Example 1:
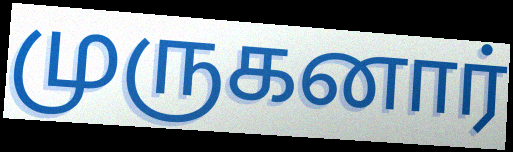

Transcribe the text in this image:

முருகனார்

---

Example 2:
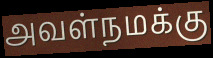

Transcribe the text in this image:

அவள்நமக்கு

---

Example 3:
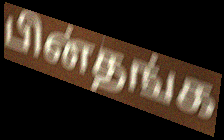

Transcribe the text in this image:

பின்தங்க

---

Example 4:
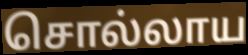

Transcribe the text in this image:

சொல்லாய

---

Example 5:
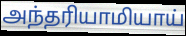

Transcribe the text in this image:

அந்தரியாமியாய்